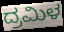
ದ್ರಮಿಳ